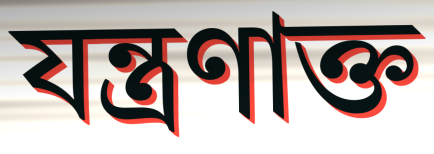
যন্ত্রণাক্ত